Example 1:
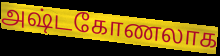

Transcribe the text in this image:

அஷ்டகோணலாக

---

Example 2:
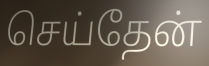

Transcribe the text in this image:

செய்தேன்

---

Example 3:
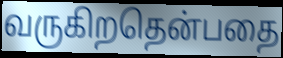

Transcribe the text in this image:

வருகிறதென்பதை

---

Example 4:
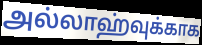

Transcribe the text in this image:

அல்லாஹ்வுக்காக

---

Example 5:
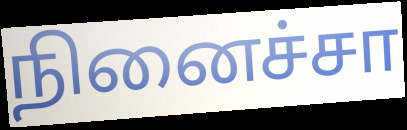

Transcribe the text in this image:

நினைச்சா